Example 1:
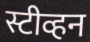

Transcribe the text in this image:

स्टीव्हन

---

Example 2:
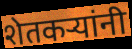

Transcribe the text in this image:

शेतकर्‍यांनी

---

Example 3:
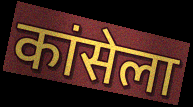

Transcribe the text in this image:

कांसेला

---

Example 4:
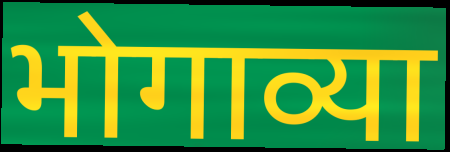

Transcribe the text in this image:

भोगाव्या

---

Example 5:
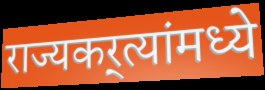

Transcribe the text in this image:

राज्यकर्त्यांमध्ये